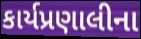
કાર્યપ્રણાલીના